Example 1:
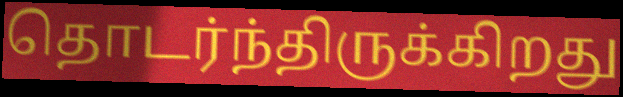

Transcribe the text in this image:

தொடர்ந்திருக்கிறது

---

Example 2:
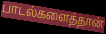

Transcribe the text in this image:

பாடல்களைத்தான்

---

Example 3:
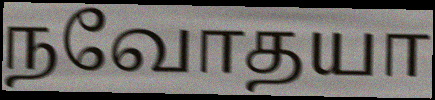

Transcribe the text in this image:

நவோதயா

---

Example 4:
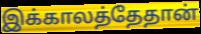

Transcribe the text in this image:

இக்காலத்தேதான்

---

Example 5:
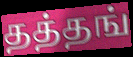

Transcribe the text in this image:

தத்தங்